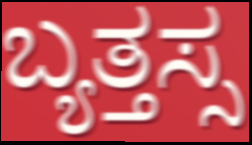
ಬ್ಯತ್ತಸ್ಸ